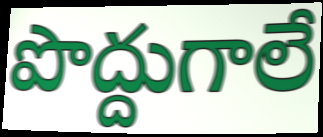
పొద్దుగాలే